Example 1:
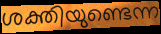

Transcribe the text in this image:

ശക്തിയുണ്ടെന്ന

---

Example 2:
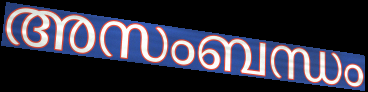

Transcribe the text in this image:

അസംബന്ധം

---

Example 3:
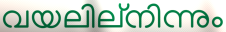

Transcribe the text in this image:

വയലില്നിന്നും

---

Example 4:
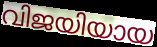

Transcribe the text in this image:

വിജയിയായ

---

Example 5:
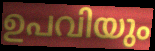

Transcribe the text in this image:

ഉപവിയും